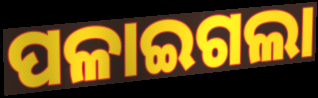
ପଳାଇଗଲା